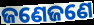
ଜଣେଜଣେ